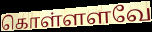
கொள்ளளவே